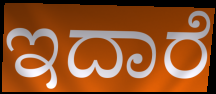
ಇದಾರೆ